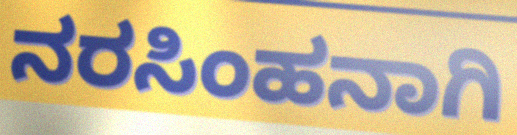
ನರಸಿಂಹನಾಗಿ